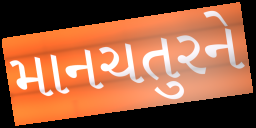
માનચતુરને